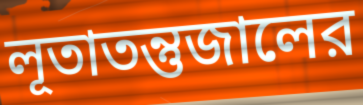
লূতাতন্তুজালের